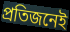
প্ৰতিজনেই